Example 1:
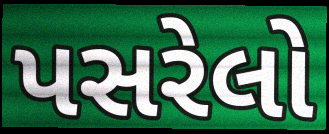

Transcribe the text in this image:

પસરેલો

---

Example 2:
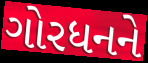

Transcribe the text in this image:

ગોરધનને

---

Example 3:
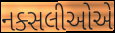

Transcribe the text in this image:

નક્સલીઓએ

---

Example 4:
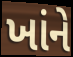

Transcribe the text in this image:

ખાંને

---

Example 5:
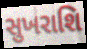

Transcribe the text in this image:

સુખરાશિ